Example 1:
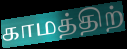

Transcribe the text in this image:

காமத்திற்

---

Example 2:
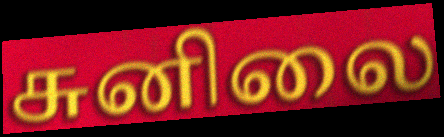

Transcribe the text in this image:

சுனிலை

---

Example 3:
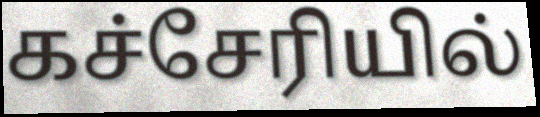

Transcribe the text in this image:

கச்சேரியில்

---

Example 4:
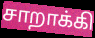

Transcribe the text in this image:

சாறாக்கி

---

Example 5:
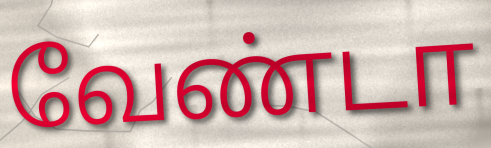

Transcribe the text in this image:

வேண்டா